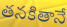
తనకితానే